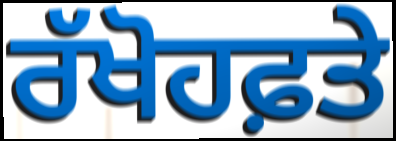
ਰੱਖੋਹਫ਼ਤੇ